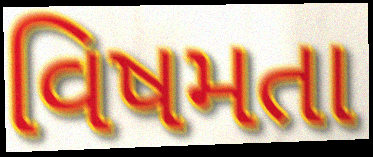
વિષમતા